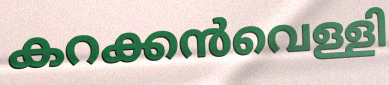
കറക്കൻവെള്ളി